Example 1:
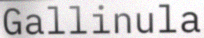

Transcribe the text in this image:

Gallinula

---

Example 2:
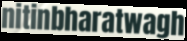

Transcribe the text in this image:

nitinbharatwagh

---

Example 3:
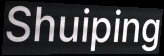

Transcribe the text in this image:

Shuiping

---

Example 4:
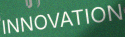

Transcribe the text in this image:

INNOVATION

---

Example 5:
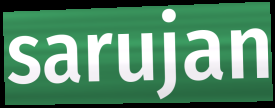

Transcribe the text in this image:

sarujan